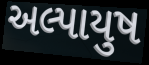
અલ્પાયુષ